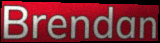
Brendan